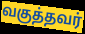
வகுத்தவர்